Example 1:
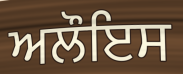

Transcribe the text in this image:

ਅਲੌਇਸ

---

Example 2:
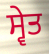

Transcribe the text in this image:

ਸ੍ਵੇਤ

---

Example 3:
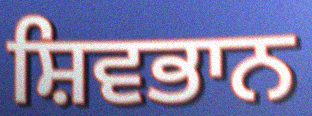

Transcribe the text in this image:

ਸ਼ਿਵਭਾਨ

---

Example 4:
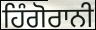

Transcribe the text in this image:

ਹਿੰਗੋਰਾਨੀ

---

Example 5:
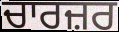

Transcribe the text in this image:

ਚਾਰਜ਼ਰ